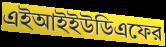
এইআইইউডিএফের